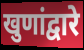
खुणांद्वारे